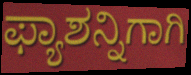
ಫ್ಯಾಶನ್ನಿಗಾಗಿ